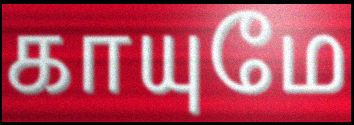
காயுமே